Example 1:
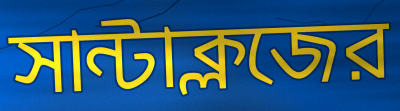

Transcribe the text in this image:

সান্টাক্লজের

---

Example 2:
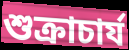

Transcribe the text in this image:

শুক্রাচার্য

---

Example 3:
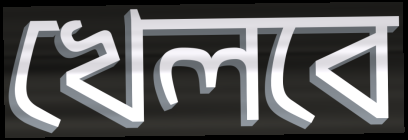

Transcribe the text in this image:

খেলবে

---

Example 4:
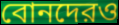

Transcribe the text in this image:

বোনদেরও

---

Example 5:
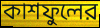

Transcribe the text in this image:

কাশফুলের